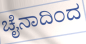
ಚೈನಾದಿಂದ